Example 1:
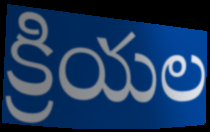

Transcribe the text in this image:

క్రియల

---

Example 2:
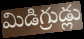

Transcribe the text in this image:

మిడిగ్రుడ్లు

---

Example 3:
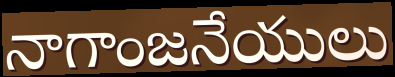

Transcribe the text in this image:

నాగాంజనేయులు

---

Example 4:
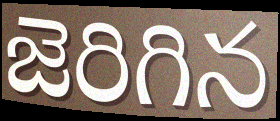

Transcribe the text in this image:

జెరిగిన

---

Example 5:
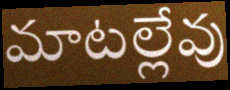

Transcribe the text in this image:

మాటల్లేవు